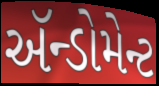
ઍન્ડોમેન્ટ